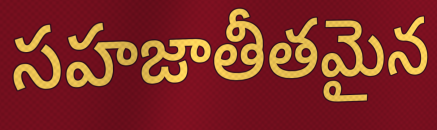
సహజాతీతమైన